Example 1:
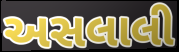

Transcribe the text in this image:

અસલાલી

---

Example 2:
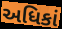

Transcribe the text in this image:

અધિકાં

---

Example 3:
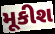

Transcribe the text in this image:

મૂકીશ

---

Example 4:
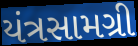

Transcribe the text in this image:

યંત્રસામગ્રી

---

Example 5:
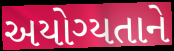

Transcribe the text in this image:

અયોગ્યતાને